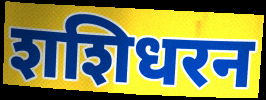
शशिधरन